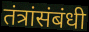
तंत्रांसंबंधी